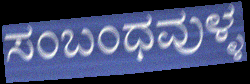
ಸಂಬಂಧವುಳ್ಳ